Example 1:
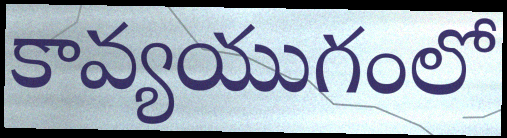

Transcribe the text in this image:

కావ్యయుగంలో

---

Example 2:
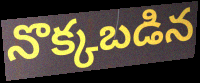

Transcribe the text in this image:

నొక్కబడిన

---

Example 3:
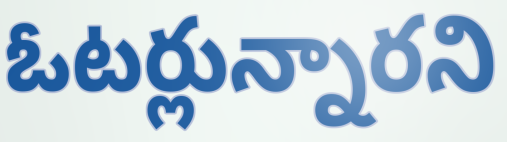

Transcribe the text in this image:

ఓటర్లున్నారని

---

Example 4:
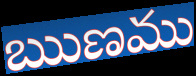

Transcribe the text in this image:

ఋణము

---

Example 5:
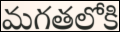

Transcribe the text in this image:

మగతలోకి